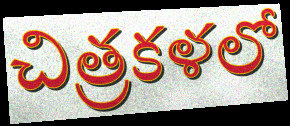
చిత్రకళలో